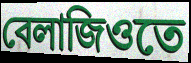
বেলাজিওতে